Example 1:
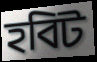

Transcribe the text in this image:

হবিট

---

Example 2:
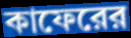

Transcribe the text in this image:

কাফেরের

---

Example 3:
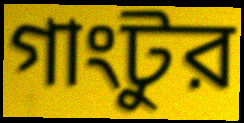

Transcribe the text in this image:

গাংটুর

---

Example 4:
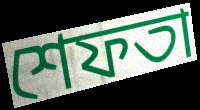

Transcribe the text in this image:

শেফতা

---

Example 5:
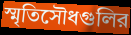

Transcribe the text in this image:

স্মৃতিসৌধগুলির